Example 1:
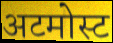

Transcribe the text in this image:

अटमोस्ट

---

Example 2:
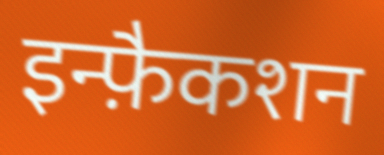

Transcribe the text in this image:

इन्फ़ैकशन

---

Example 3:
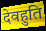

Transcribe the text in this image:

देवहुति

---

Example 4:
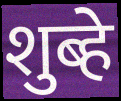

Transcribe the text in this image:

शुब्हे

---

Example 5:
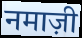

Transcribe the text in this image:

नमाज़ी